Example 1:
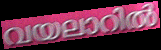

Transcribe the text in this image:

വയലാറിൽ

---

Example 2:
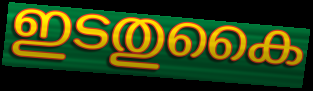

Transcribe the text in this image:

ഇടതുകൈ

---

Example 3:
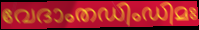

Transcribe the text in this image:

വേദാംതഡിംഡിമഃ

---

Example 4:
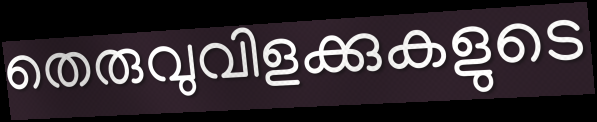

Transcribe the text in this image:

തെരുവുവിളക്കുകളുടെ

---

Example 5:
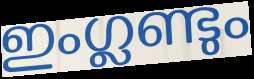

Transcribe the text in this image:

ഇംഗ്ലണ്ടും